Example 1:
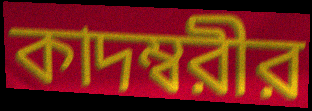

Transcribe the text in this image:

কাদম্বরীর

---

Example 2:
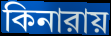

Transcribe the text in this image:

কিনারায়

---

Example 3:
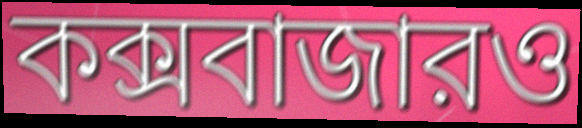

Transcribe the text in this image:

কক্সবাজারও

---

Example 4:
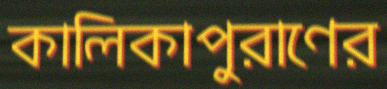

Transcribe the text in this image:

কালিকাপুরাণের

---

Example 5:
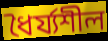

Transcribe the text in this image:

ধৈর্য্যশীল